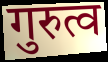
गुरुत्व